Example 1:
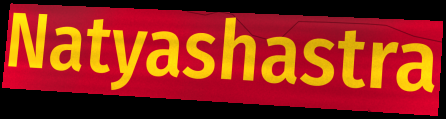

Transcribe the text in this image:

Natyashastra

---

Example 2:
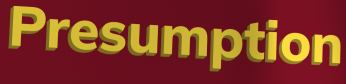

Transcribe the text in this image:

Presumption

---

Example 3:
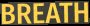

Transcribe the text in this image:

BREATH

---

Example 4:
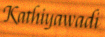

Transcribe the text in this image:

Kathiyawadi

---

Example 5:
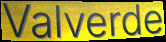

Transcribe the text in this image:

Valverde